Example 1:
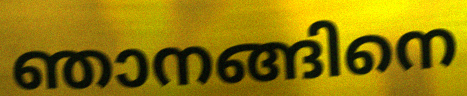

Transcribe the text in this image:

ഞാനങ്ങിനെ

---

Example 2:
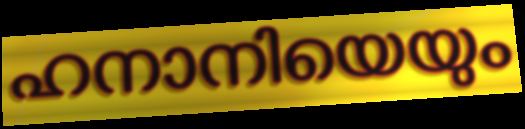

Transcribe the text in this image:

ഹനാനിയെയും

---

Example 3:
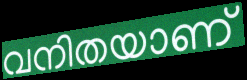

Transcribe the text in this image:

വനിതയാണ്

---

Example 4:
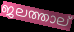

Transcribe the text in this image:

ജലത്താല്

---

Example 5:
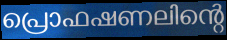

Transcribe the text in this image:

പ്രൊഫഷണലിന്റെ